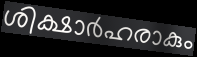
ശിക്ഷാർഹരാകും